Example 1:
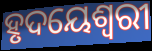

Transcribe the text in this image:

ହୃଦୟେଶ୍ୱରୀ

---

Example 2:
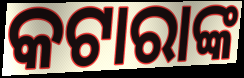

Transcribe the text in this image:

କଟାରାଙ୍କ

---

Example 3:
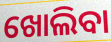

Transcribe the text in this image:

ଖୋଲିବା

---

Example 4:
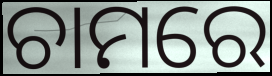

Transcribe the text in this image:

ଚାମରେ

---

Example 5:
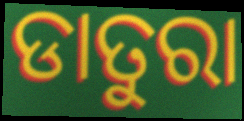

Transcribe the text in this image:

ଡାତୁରା